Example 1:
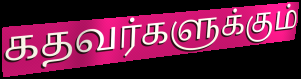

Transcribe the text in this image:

கதவர்களுக்கும்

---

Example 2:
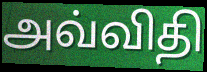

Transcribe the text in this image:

அவ்விதி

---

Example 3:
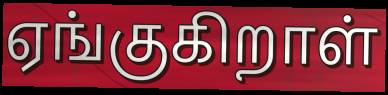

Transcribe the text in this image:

ஏங்குகிறாள்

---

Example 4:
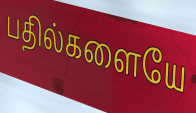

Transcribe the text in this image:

பதில்களையே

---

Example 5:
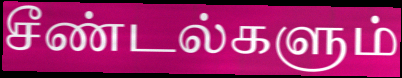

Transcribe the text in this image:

சீண்டல்களும்